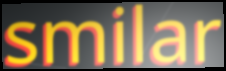
smilar